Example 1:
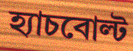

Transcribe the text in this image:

হ্যাচবোল্ট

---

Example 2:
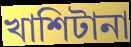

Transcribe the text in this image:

খাশিটানা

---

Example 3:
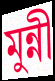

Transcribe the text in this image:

মুন্নী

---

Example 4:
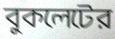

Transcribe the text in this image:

বুকলেটের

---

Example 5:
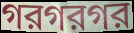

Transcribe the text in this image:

গরগরগর